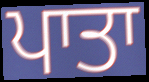
ਪਾਤਾ